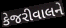
કેજરીવાલને